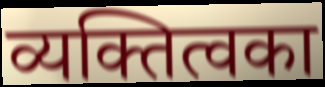
व्यक्तित्वका